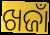
ଖଜାଁ